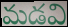
మడవి